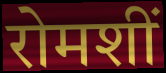
रोमशीं